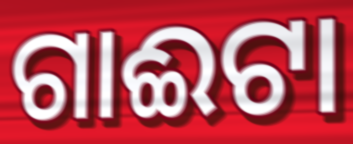
ଗାଈଟା